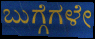
ಬುಗ್ಗೆಗಳೇ